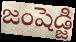
జంషెడ్జి